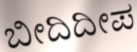
ಬೀದಿದೀಪ